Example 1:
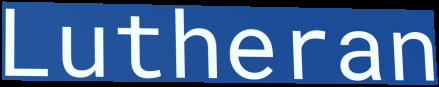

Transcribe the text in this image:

Lutheran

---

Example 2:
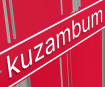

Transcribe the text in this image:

kuzambum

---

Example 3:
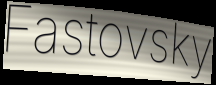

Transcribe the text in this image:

Fastovsky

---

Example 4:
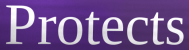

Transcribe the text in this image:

Protects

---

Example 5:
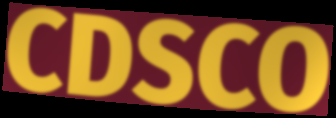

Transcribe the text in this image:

CDSCO